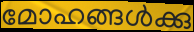
മോഹങ്ങൾക്കു